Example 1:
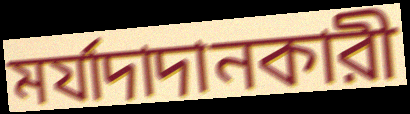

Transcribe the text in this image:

মর্যাদাদানকারী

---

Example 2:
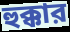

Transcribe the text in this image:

হুক্কার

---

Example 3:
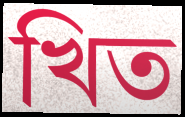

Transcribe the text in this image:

খিত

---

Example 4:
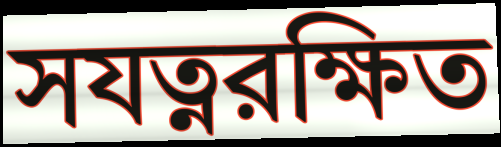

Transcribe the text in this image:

সযত্নরক্ষিত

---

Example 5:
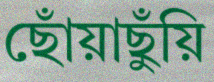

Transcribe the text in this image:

ছোঁয়াছুঁয়ি